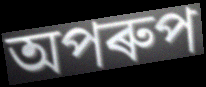
অপৰুপ